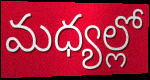
మధ్యల్లో